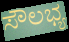
ಸೌಲಭ್ಯ